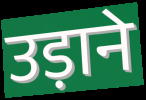
उड़ाने